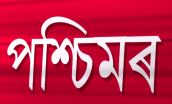
পশ্চিমৰ